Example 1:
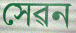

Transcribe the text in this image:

সেৱন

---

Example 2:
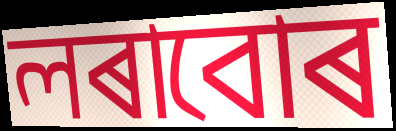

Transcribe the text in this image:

লৰাবোৰ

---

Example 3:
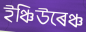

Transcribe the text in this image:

ইঞ্চিউৰেঞ্চ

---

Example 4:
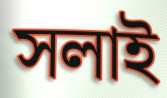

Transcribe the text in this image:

সলাই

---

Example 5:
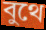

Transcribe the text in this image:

বুথে